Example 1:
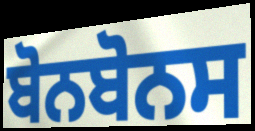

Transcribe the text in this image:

ਬੋਨਬੋਨਸ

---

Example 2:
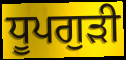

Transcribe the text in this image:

ਧੂਪਗੁੜੀ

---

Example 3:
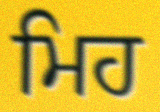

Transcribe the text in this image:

ਮਿਹ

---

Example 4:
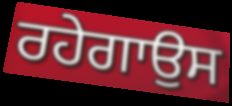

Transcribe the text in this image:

ਰਹੇਗਾਉਸ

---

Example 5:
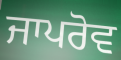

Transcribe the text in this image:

ਜਾਪਰੋਵ